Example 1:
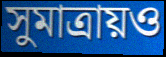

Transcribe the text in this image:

সুমাত্রায়ও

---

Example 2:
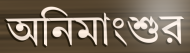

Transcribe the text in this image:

অনিমাংশুর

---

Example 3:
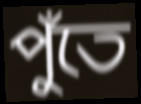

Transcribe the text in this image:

পুঁতে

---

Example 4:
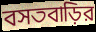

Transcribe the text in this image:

বসতবাড়ির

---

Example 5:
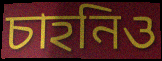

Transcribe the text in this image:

চাহনিও